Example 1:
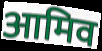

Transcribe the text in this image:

आमिव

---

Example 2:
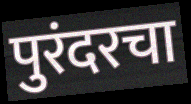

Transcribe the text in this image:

पुरंदरचा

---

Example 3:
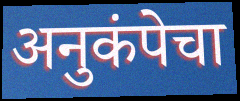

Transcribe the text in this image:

अनुकंपेचा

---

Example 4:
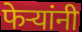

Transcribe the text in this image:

फेऱ्यांनी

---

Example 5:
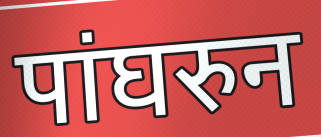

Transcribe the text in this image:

पांघरुन